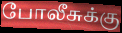
போலீசுக்கு